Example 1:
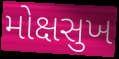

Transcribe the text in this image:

મોક્ષસુખ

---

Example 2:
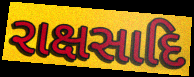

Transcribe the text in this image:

રાક્ષસાદિ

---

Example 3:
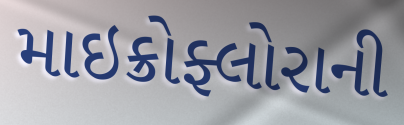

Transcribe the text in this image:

માઇક્રોફ્લોરાની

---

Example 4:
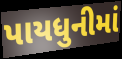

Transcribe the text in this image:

પાયધુનીમાં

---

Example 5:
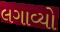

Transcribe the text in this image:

લગાવ્યો